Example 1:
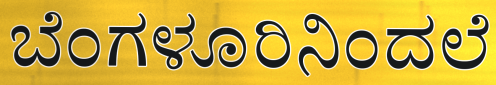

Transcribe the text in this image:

ಬೆಂಗಳೂರಿನಿಂದಲೆ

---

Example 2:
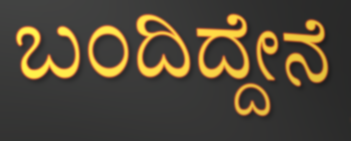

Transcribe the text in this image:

ಬಂದಿದ್ದೇನೆ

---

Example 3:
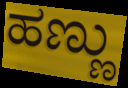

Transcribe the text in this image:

ಹಣ್ಣು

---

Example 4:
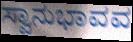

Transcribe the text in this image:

ಸ್ವಾನುಭಾವವ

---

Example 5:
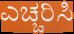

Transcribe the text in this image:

ಎಚ್ಚರಿಸಿ